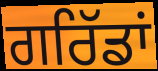
ਗਰਿੱਡਾਂ